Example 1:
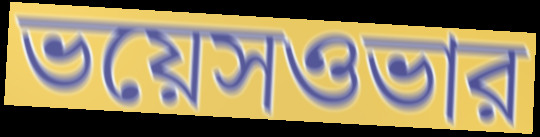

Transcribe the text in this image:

ভয়েসওভার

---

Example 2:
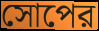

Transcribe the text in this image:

সোপের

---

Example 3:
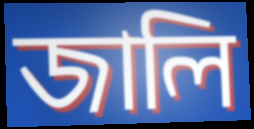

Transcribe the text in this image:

জালি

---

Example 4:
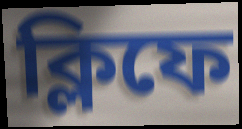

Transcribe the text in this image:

ক্লিফে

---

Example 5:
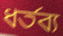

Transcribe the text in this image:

ধর্তব্য